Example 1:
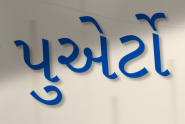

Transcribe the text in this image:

પુએર્ટો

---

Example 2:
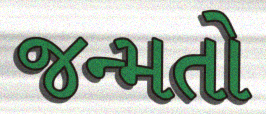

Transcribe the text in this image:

જન્મતો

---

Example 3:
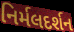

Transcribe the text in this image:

નિર્મલદર્શન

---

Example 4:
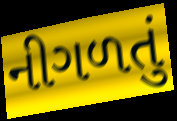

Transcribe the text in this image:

નીગળતું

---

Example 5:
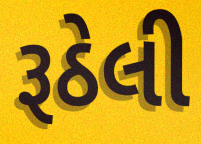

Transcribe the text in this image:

રૂઠેલી